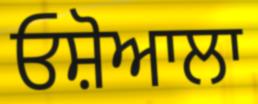
ਓਸ਼ੋਆਲਾ